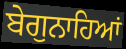
ਬੇਗੁਨਾਹਿਆਂ